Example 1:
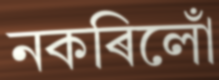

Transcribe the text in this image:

নকৰিলোঁ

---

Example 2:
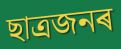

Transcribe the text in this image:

ছাত্ৰজনৰ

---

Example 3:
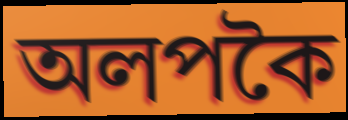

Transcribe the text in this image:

অলপকৈ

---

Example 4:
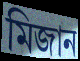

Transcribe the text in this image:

মিজান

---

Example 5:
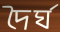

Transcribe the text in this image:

দৈৰ্ঘ